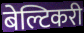
बेल्टिकरी